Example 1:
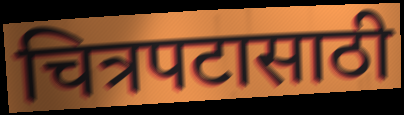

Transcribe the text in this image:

चित्रपटासाठी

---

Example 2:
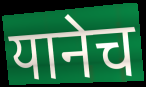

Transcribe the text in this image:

यानेच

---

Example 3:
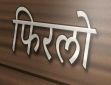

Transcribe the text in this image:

फिरलो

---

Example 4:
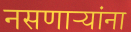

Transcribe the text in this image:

नसणाऱ्यांना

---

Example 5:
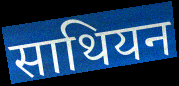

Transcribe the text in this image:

साथियन